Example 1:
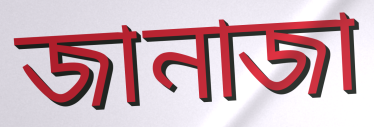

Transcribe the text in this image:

জানাজা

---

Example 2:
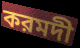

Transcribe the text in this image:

করমদী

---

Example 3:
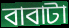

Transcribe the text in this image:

বাবাটা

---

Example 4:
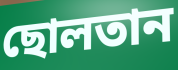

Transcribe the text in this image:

ছোলতান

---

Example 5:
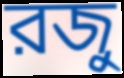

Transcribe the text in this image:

রজু